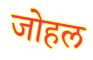
जोहल